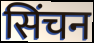
सिंचन